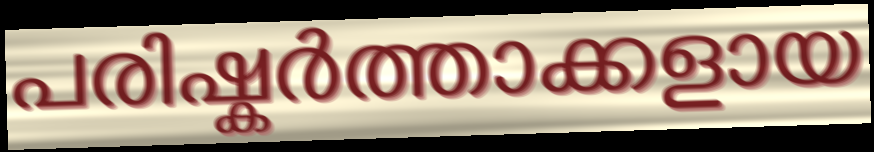
പരിഷ്കർത്താക്കളായ